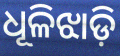
ଧୂଳିଝାଡ଼ି